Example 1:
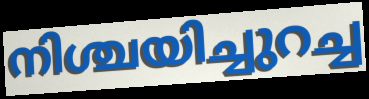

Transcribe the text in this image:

നിശ്ചയിച്ചുറച്ച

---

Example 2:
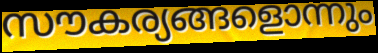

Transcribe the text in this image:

സൗകര്യങ്ങളൊന്നും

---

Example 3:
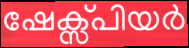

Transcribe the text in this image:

ഷേക്സ്പിയർ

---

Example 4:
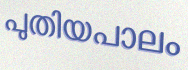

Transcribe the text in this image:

പുതിയപാലം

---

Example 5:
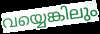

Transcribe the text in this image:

വയ്യെങ്കിലും